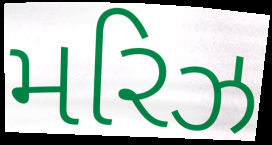
મરિઝ